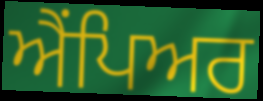
ਐਂਪਿਅਰ